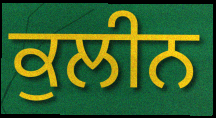
ਕੁਲੀਨ